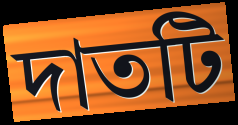
দাতটি